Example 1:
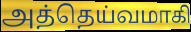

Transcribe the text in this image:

அத்தெய்வமாகி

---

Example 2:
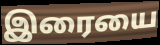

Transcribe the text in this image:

இரையை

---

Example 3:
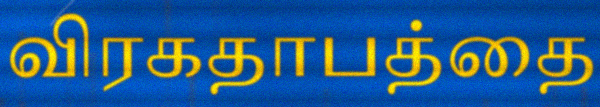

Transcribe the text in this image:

விரகதாபத்தை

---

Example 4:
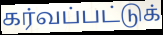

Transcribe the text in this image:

கர்வப்பட்டுக்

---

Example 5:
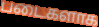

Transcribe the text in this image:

படைகளாக